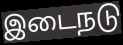
இடைநடு